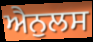
ਐਨੁਲਸ